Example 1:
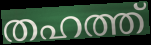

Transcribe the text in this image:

തഹത്ത്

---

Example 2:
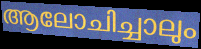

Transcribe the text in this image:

ആലോചിച്ചാലും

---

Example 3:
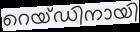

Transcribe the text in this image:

റെയ്ഡിനായി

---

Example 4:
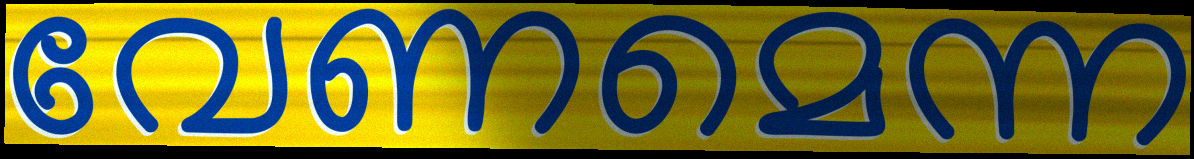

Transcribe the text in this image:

വേണമെന്ന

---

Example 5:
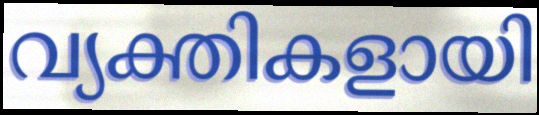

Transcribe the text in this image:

വ്യക്തികളായി